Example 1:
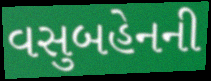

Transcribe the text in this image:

વસુબહેનની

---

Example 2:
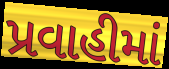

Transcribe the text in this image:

પ્રવાહીમાં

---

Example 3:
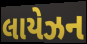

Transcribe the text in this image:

લાયેઝન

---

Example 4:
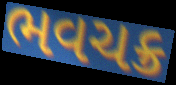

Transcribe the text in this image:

ભવચક્ર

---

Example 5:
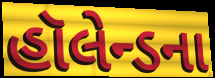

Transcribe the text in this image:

હૉલેન્ડના